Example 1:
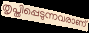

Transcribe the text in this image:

തൃപ്തിപ്പെടുന്നവരാണ്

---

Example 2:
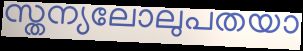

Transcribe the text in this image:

സ്തന്യലോലുപതയാ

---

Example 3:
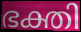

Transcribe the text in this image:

ഭക്തി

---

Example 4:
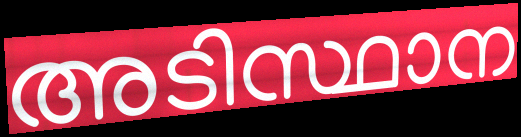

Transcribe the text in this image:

അടിസ്ഥാന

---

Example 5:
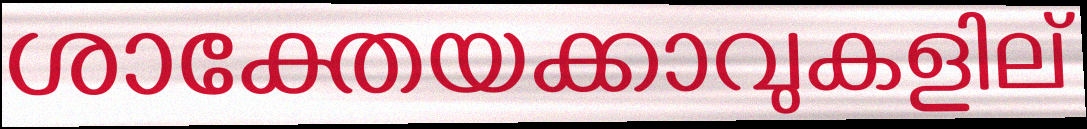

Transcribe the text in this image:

ശാക്തേയക്കാവുകളില്